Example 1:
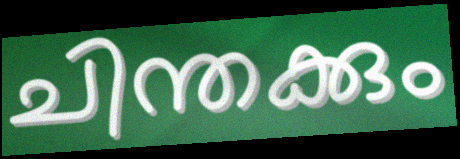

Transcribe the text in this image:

ചിന്തക്കും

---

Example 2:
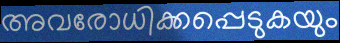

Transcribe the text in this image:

അവരോധിക്കപ്പെടുകയും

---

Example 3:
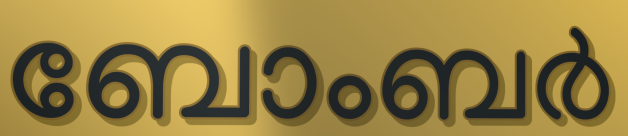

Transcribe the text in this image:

ബോംബർ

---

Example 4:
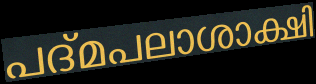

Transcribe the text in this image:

പദ്മപലാശാക്ഷി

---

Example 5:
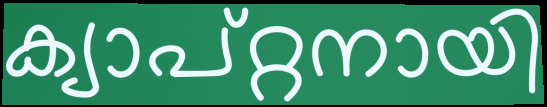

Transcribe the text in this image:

ക്യാപ്റ്റനായി